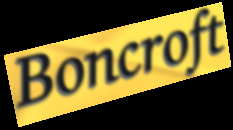
Boncroft